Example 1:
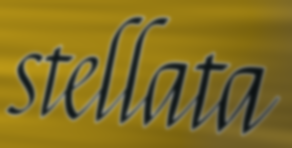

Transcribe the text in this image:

stellata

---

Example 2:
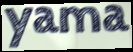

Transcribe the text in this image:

yama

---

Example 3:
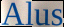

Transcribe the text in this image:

Alus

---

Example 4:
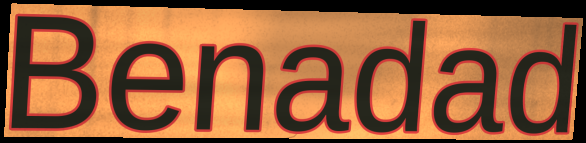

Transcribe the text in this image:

Benadad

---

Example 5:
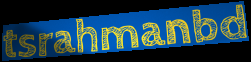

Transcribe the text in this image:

tsrahmanbd